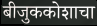
बीजुककोशाचा